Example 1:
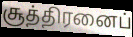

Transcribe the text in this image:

சூத்திரனைப்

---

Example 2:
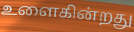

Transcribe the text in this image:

உளைகின்றது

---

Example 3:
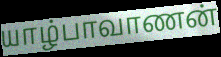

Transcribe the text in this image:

யாழ்பாவாணன்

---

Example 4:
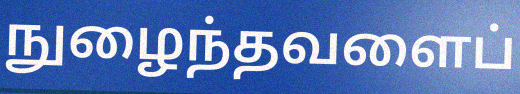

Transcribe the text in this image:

நுழைந்தவளைப்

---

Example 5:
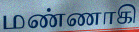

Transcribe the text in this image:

மண்ணாகி